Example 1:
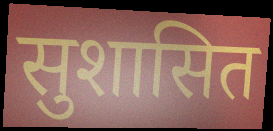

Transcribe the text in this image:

सुशासित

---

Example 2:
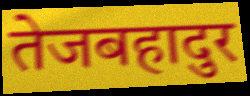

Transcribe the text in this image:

तेजबहादुर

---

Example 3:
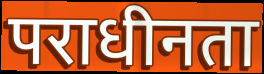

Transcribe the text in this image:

पराधीनता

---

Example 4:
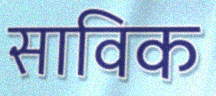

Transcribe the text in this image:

साविक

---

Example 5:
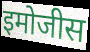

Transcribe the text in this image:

इमोजीस